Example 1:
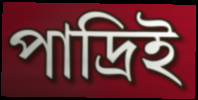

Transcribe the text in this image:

পাদ্রিই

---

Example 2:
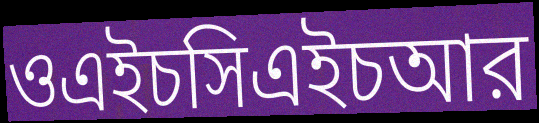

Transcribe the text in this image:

ওএইচসিএইচআর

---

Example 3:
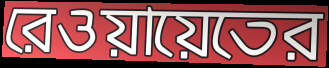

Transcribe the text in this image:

রেওয়ায়েতের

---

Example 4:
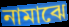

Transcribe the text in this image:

নামাঝে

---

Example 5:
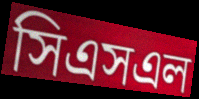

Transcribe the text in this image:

সিএসএল